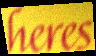
heres